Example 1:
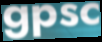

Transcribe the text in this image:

gpsc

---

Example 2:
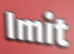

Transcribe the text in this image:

Imit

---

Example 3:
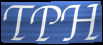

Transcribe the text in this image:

TPH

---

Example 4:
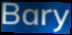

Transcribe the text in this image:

Bary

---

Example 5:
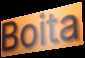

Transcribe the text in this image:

Boita